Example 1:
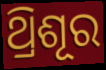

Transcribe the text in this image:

ଥ୍ରିଶୂର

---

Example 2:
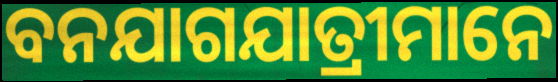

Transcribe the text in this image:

ବନଯାଗଯାତ୍ରୀମାନେ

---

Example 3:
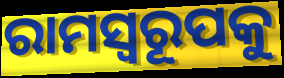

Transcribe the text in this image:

ରାମସ୍ୱରୂପକୁ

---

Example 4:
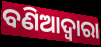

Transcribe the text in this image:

ବଣିଆଦ୍ୱାରା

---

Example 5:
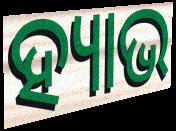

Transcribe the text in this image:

ହ୍ୟାଭ